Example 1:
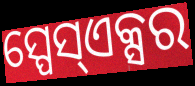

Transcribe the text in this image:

ସ୍ପେସ୍ଏକ୍ସର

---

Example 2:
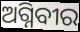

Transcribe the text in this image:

ଅଗ୍ନିବୀର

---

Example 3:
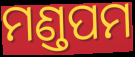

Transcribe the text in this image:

ମଣ୍ଡପମ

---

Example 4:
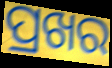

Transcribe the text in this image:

ପ୍ରଖର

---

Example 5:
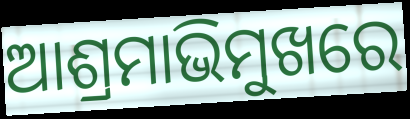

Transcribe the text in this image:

ଆଶ୍ରମାଭିମୁଖରେ